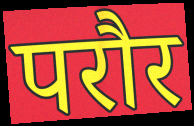
परौर